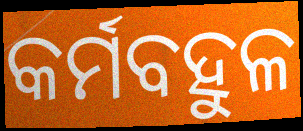
କର୍ମବହୁଳ